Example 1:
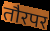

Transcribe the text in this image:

तौरपर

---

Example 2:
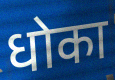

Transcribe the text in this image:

धोका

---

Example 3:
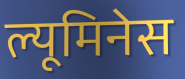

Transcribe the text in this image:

ल्यूमिनेस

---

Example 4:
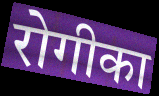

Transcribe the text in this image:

रोगीका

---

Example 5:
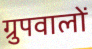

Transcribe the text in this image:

ग्रुपवालों